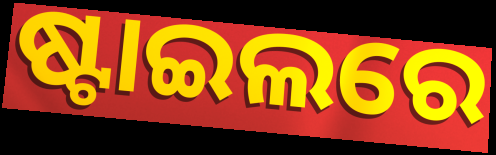
ଷ୍ଟାଇଲରେ